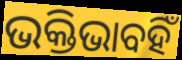
ଭକ୍ତିଭାବହିଁ